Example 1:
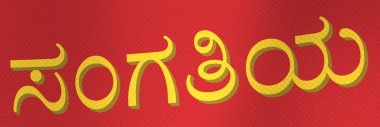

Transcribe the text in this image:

ಸಂಗತಿಯ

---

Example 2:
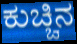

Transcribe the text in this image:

ಕುಚ್ಚಿನ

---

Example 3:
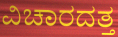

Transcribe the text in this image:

ವಿಚಾರದತ್ತ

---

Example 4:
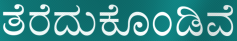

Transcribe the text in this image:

ತೆರೆದುಕೊಂಡಿವೆ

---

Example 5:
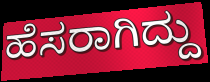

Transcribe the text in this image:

ಹೆಸರಾಗಿದ್ದು